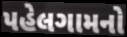
પહેલગામનો